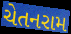
ચેતનરામ